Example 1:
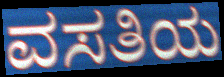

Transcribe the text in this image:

ವಸತಿಯ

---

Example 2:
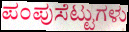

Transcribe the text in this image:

ಪಂಪುಸೆಟ್ಟುಗಳು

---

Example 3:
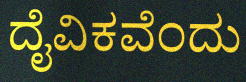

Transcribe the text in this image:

ದೈವಿಕವೆಂದು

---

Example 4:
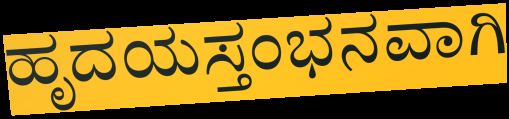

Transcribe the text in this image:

ಹೃದಯಸ್ತಂಭನವಾಗಿ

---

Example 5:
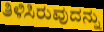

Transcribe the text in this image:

ತಿಳಿಸಿರುವುದನ್ನು